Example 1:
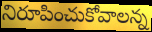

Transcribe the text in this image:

నిరూపించుకోవాలన్న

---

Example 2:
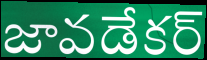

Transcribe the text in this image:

జావడేకర్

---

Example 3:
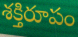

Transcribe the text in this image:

శక్తిరూపం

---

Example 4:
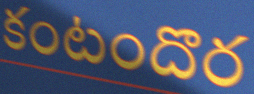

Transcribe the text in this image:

కంటందొర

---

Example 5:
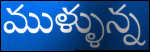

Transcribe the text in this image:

ముళ్ళున్న